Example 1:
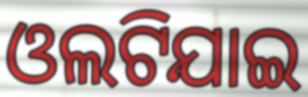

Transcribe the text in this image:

ଓଲଟିଯାଇ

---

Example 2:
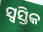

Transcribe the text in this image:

ସ୍ୱସ୍ତିକ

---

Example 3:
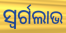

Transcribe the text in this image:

ସ୍ୱର୍ଗଲାଭ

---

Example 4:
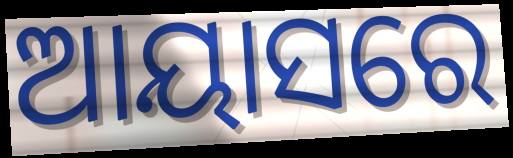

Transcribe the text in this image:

ଆୟାସରେ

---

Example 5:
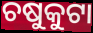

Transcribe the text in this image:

ଚଷୁକୁଟା